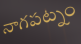
నాగపట్నం